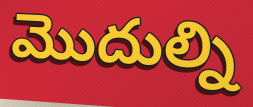
మొదుల్ని